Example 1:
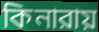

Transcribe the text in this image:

কিনারায়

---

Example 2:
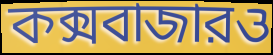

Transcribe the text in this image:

কক্সবাজারও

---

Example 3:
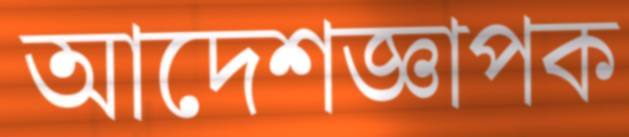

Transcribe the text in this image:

আদেশজ্ঞাপক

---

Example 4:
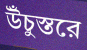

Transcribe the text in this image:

উঁচুস্তরে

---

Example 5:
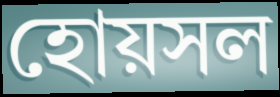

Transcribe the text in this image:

হোয়সল